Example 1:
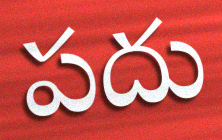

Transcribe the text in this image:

పదు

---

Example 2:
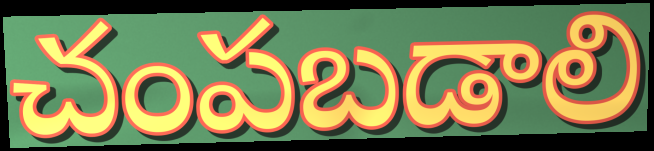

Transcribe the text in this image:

చంపబడాలి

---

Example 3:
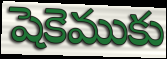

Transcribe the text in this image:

షెకెముకు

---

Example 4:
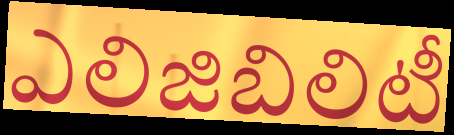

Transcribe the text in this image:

ఎలిజిబిలిటీ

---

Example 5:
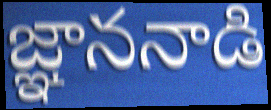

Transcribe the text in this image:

జ్ఞాననాడి